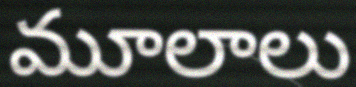
మూలాలు